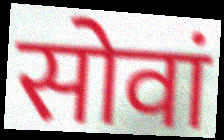
सोवां